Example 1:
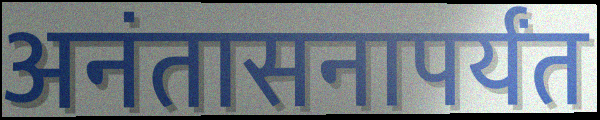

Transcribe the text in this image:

अनंतासनापर्यंत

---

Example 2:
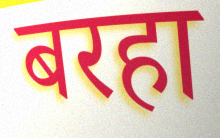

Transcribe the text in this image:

बरहा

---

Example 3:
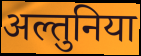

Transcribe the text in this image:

अल्तुनिया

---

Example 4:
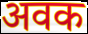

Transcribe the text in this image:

अवक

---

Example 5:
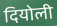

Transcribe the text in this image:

दियोली